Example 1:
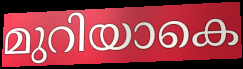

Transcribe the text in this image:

മുറിയാകെ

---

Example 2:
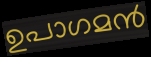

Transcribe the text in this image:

ഉപാഗമൻ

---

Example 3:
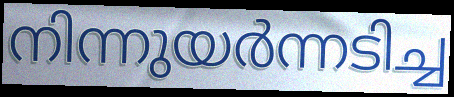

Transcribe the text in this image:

നിന്നുയർന്നടിച്ച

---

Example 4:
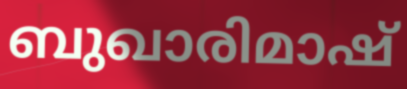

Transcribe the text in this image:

ബുഖാരിമാഷ്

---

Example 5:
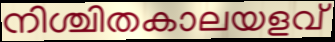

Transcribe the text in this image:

നിശ്ചിതകാലയളവ്